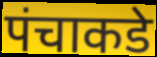
पंचाकडे